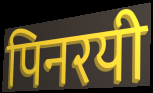
पिनरयी